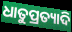
ଧାତୁପ୍ରତ୍ୟାଦି